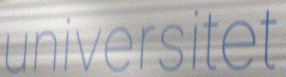
universitet